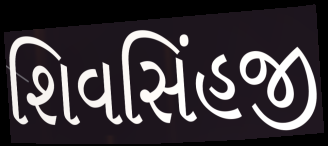
શિવસિંહજી